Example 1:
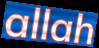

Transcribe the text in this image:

allah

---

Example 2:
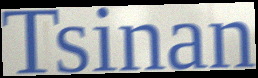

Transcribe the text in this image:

Tsinan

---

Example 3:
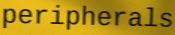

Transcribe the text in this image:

peripherals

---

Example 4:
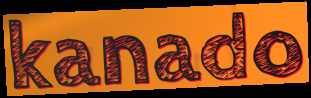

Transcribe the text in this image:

kanado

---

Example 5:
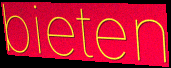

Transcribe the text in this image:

bieten